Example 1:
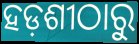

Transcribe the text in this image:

ହଡ଼ଶୀଠାରୁ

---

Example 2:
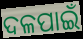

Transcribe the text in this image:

ଦଳପାଇଁ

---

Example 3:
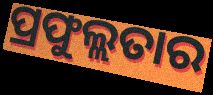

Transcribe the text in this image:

ପ୍ରଫୁଲ୍ଲତାର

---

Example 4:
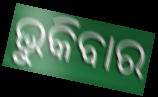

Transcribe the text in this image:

ଭୁକିବାର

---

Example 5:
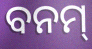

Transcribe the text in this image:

ବନମ୍